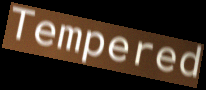
Tempered